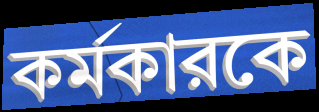
কর্মকারকে